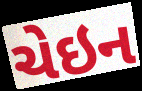
ચેઇન